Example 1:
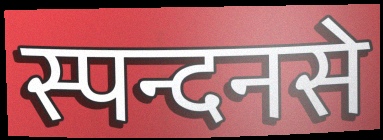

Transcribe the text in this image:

स्पन्दनसे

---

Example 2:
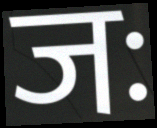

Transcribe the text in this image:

जः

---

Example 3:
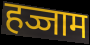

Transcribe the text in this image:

हज्जाम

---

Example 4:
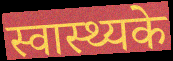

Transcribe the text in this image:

स्वास्थ्यके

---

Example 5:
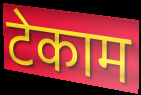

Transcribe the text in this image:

टेकाम